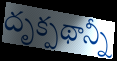
దృక్పథాన్నీ